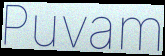
Puvam